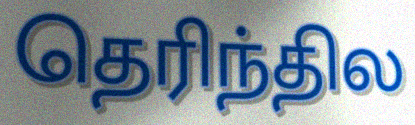
தெரிந்தில